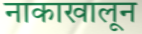
नाकाखालून